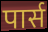
पार्स